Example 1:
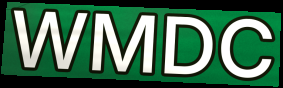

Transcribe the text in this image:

WMDC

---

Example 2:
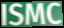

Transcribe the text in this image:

ISMC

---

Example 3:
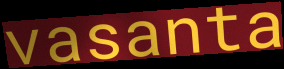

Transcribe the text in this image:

vasanta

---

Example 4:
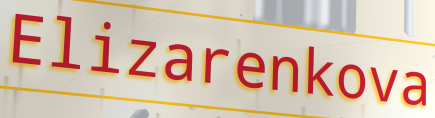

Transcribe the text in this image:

Elizarenkova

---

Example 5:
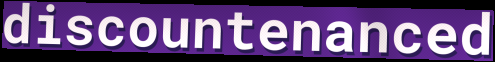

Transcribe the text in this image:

discountenanced